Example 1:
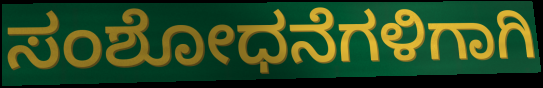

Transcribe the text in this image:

ಸಂಶೋಧನೆಗಳಿಗಾಗಿ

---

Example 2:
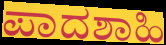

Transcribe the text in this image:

ಪಾದಶಾಹಿ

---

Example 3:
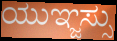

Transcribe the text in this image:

ಯುಞ್ಜಸ್ಸು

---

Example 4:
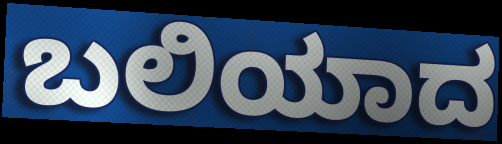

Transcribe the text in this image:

ಬಲಿಯಾದ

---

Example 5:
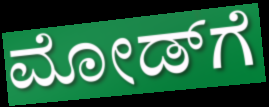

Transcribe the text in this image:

ಮೋಡ್‌ಗೆ